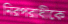
নিরপরাধীকে